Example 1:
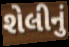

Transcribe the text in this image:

શેલીનું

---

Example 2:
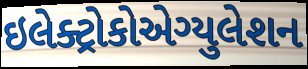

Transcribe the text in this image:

ઇલેક્ટ્રોકોએગ્યુલેશન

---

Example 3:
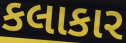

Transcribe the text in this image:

કલાકાર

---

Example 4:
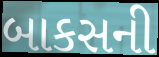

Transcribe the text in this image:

બાકસની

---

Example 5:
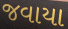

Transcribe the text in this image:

જવાયા